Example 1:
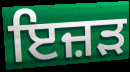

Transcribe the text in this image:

ਇਜ਼ੜ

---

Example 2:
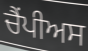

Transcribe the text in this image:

ਚੈਂਪੀਅਸ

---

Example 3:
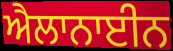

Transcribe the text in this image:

ਐਲਾਨਾਈਨ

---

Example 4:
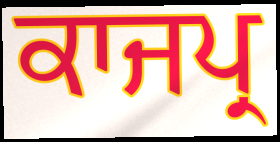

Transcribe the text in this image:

ਕਾਜਪ੍ਰ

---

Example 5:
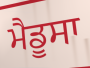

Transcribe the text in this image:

ਮੈਡੂਸਾ